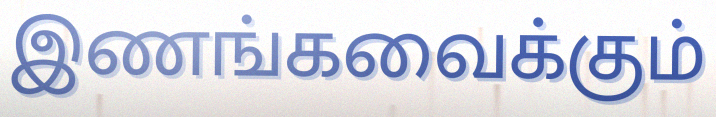
இணங்கவைக்கும்